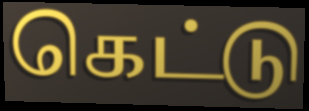
கெட்டு